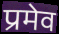
प्रमेव